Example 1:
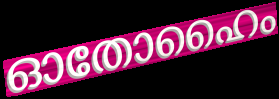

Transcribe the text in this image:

ഓതോഹൈം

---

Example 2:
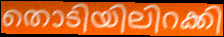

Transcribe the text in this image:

തൊടിയിലിറക്കി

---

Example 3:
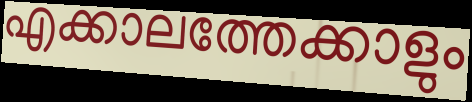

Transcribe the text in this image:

എക്കാലത്തേക്കാളും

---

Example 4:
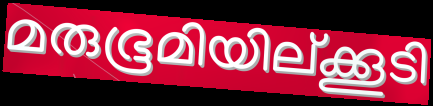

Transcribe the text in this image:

മരുഭൂമിയില്ക്കൂടി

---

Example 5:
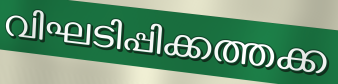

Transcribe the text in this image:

വിഘടിപ്പിക്കത്തക്ക